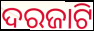
ଦରଜାଟି